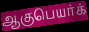
ஆகுபெயர்க்